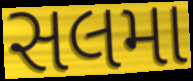
સલમા